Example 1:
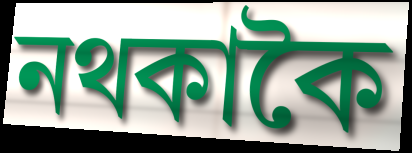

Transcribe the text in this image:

নথকাকৈ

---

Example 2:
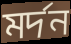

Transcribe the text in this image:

মৰ্দন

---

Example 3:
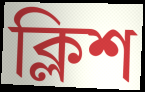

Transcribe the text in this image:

ক্লিশ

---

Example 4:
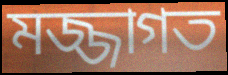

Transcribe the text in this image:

মজ্জাগত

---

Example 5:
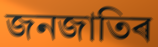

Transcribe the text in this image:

জনজাতিৰ